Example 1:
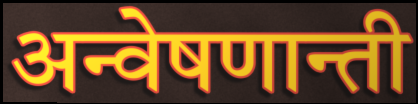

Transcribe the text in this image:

अन्वेषणान्ती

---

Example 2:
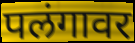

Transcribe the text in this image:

पलंगावर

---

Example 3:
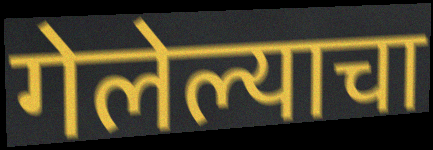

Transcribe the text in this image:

गेलेल्याचा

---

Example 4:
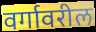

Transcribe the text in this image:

वर्गावरील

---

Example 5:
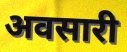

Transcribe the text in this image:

अवसारी